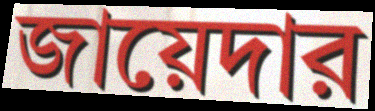
জায়েদার